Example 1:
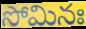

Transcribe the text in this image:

సోమినః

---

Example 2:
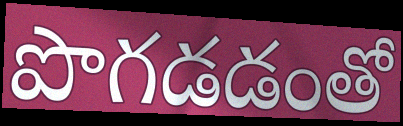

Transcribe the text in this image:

పొగడడంతో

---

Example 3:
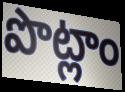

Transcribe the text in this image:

పొట్లాం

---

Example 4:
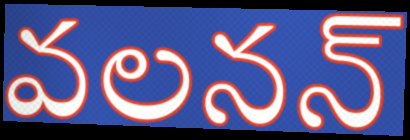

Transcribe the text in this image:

వలనన్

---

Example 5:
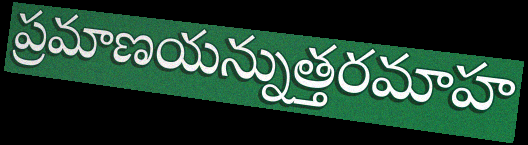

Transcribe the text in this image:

ప్రమాణయన్నుత్తరమాహ